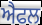
ਐਫਲ